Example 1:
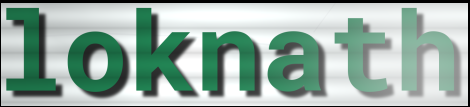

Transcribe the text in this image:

loknath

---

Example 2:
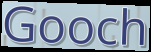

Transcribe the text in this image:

Gooch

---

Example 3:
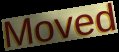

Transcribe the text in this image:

Moved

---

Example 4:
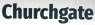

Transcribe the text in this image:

Churchgate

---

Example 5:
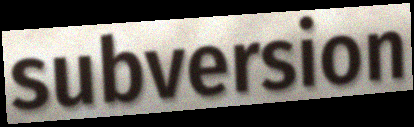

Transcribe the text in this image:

subversion